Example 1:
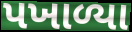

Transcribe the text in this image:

પખાળ્યા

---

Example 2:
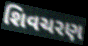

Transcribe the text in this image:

શિવચરણ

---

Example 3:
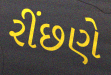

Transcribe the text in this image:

રીંછણે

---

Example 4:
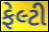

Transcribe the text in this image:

ફેલ્ટી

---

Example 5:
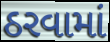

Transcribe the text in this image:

ઠરવામાં